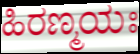
ಹಿರಣ್ಮಯಃ